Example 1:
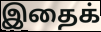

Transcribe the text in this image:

இதைக்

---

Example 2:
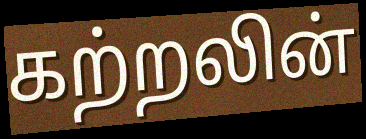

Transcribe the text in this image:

கற்றலின்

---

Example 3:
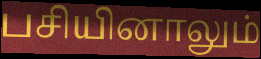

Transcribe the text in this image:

பசியினாலும்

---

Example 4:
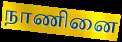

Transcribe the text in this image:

நாணினை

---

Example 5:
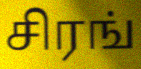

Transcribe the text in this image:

சிரங்